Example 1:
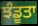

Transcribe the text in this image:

ਝੰਡੂਤਾ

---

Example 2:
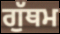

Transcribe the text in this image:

ਗੁੱਥਮ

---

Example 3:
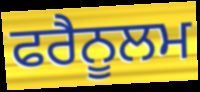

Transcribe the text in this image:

ਫਰੈਨੂਲਮ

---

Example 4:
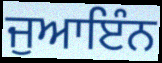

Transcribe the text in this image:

ਜੁਆਇੰਨ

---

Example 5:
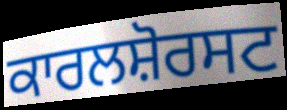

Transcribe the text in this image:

ਕਾਰਲਸ਼ੋਰਸਟ